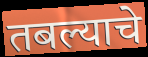
तबल्याचे